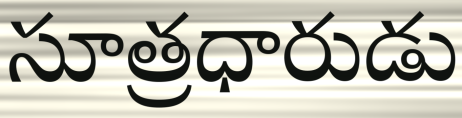
సూత్రధారుడు